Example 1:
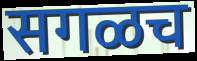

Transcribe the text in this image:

सगळच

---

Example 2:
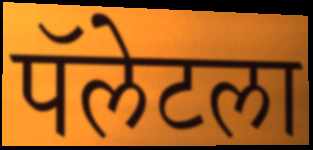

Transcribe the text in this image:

पॅलेटला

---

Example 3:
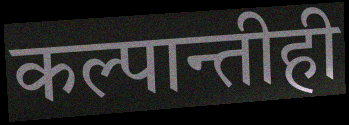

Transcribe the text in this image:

कल्पान्तीही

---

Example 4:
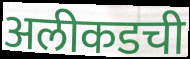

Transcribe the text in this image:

अलीकडची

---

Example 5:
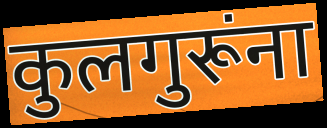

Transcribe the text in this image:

कुलगुरूंना